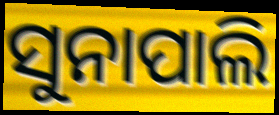
ସୁନାପାଲି